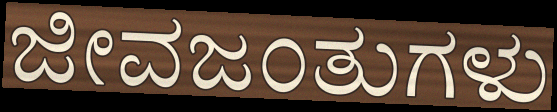
ಜೀವಜಂತುಗಳು